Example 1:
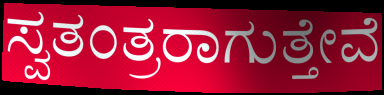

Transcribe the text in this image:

ಸ್ವತಂತ್ರರಾಗುತ್ತೇವೆ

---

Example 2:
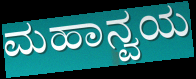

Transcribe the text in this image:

ಮಹಾನ್ವಯ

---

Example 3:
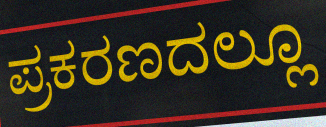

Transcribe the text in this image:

ಪ್ರಕರಣದಲ್ಲೂ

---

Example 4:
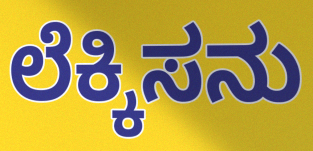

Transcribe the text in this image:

ಲೆಕ್ಕಿಸನು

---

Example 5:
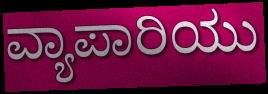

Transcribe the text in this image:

ವ್ಯಾಪಾರಿಯು